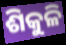
ଶିକୁଳି